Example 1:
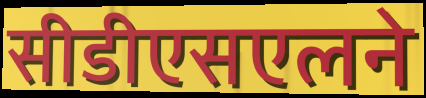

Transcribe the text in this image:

सीडीएसएलने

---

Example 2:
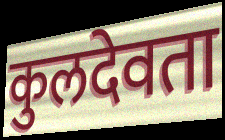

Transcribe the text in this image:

कुलदेवता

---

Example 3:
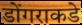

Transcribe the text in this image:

डोंगराकडे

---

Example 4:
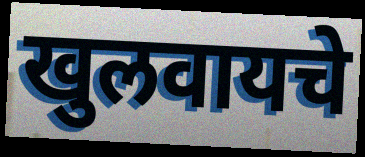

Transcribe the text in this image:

खुलवायचे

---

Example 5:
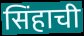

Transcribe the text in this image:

सिंहाची